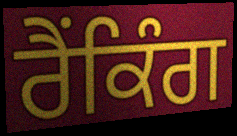
ਰੈੰਕਿੰਗ